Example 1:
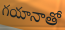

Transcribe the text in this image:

గయానాతో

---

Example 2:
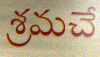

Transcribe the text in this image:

శ్రమచే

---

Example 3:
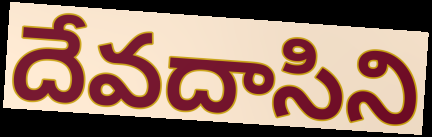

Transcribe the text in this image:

దేవదాసిని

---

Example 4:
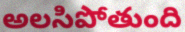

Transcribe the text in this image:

అలసిపోతుంది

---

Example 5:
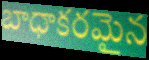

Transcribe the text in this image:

బాధాకరమైన